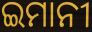
ଇମାନୀ